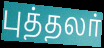
புத்தலர்